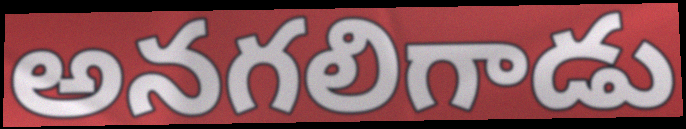
అనగలిగాడు